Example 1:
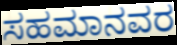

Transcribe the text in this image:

ಸಹಮಾನವರ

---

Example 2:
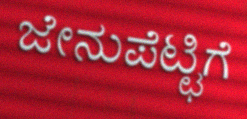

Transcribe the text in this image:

ಜೇನುಪೆಟ್ಟಿಗೆ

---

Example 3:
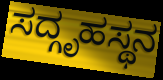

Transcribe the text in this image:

ಸದ್ಗೃಹಸ್ಥನ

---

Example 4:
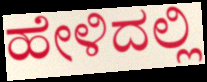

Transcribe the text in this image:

ಹೇಳಿದಲ್ಲಿ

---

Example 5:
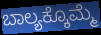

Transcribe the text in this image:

ಬಾಲ್ಯಕ್ಕೊಮ್ಮೆ